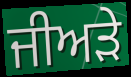
ਜੀਅੜੇ